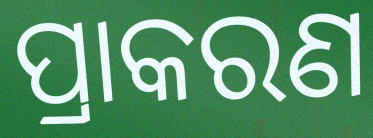
ପ୍ରାକରଣ